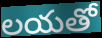
లయతో